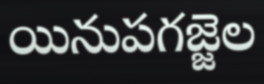
యినుపగజ్జెల